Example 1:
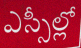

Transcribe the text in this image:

ఎస్సీల్లో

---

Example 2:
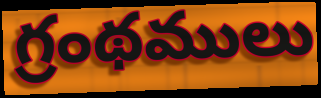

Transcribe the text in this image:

గ్రంథములు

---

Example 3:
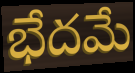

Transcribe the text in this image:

భేదమే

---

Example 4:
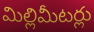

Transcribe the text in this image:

మిల్లిమీటర్లు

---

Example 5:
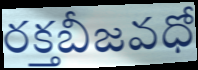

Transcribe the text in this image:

రక్తబీజవధో